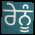
ਰੇਨੂੰ